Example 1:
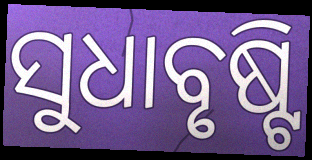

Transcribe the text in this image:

ସୁଧାବୃଷ୍ଟି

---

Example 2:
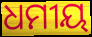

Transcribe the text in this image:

ଧମୀୟ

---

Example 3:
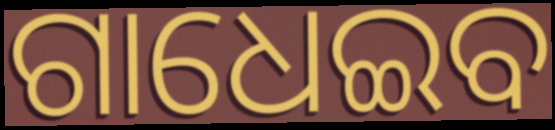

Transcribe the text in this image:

ଗାଧେଇବ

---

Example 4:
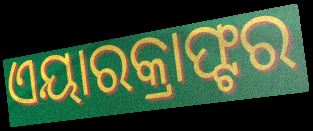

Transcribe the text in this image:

ଏୟାରକ୍ରାଫ୍ଟର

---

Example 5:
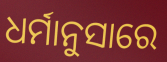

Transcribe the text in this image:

ଧର୍ମାନୁସାରେ